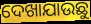
ଦେଖାଯାଉଛୁ